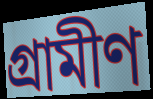
গ্রামীণ